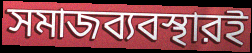
সমাজব্যবস্থারই